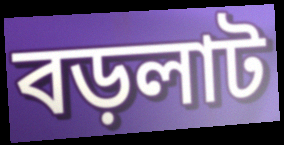
বড়লাট